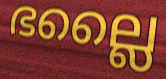
ഭല്ലൈ